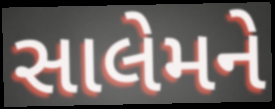
સાલેમને